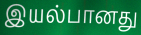
இயல்பானது